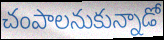
చంపాలనుకున్నాడో